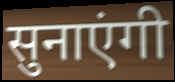
सुनाएंगी